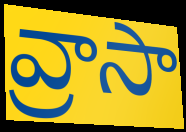
వ్రాసా